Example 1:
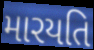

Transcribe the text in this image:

મારયતિ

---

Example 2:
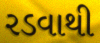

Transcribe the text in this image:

રડવાથી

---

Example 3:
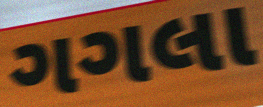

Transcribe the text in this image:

ગગલા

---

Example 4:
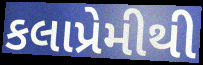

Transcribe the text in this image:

કલાપ્રેમીથી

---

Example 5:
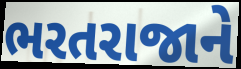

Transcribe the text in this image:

ભરતરાજાને